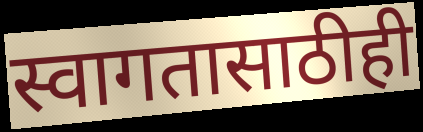
स्वागतासाठीही